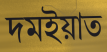
দমইয়াত